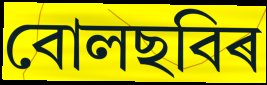
বোলছবিৰ